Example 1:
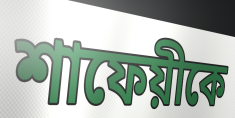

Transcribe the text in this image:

শাফেয়ীকে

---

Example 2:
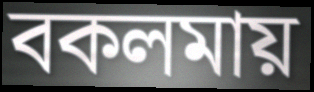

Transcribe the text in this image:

বকলমায়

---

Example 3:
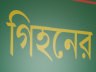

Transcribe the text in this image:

গিহনের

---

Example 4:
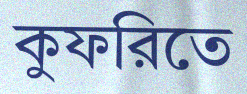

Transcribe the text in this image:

কুফরিতে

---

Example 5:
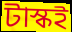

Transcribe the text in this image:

টাস্কই